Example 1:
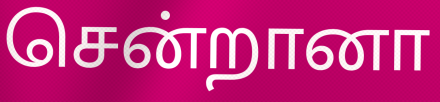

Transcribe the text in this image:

சென்றானா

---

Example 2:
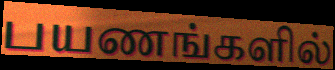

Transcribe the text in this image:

பயணங்களில்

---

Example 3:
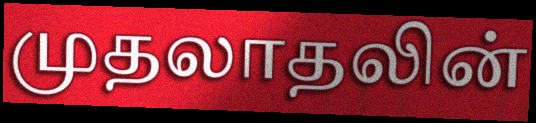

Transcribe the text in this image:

முதலாதலின்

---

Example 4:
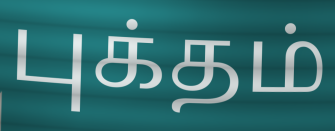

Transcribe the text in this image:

புக்தம்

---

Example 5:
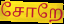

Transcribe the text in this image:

சோறே